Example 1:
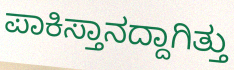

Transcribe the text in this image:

ಪಾಕಿಸ್ತಾನದ್ದಾಗಿತ್ತು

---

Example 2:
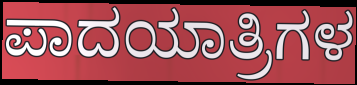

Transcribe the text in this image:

ಪಾದಯಾತ್ರಿಗಳ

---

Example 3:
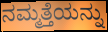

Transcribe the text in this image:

ನಮ್ಮತ್ತೆಯನ್ನು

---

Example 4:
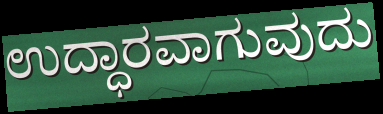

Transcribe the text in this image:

ಉದ್ಧಾರವಾಗುವುದು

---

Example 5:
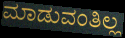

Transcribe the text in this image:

ಮಾಡುವಂತಿಲ್ಲ